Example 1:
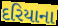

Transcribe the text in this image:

દરિયાના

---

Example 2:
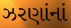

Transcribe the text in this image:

ઝરણાંનાં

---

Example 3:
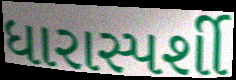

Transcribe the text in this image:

ધારાસ્પર્શી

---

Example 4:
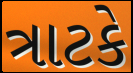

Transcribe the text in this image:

ત્રાટકે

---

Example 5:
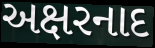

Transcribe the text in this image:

અક્ષરનાદ